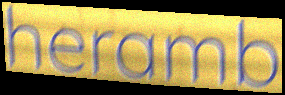
heramb